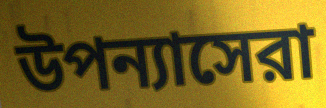
উপন্যাসেরা